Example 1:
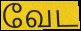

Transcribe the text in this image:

வேட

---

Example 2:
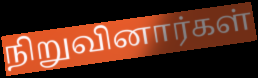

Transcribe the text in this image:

நிறுவினார்கள்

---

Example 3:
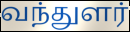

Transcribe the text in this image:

வந்துளர்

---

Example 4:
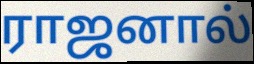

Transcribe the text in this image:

ராஜனால்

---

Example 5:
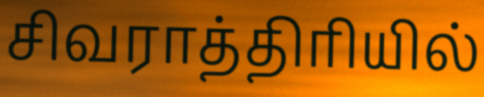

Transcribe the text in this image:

சிவராத்திரியில்